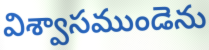
విశ్వాసముండెను